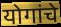
योगांचे